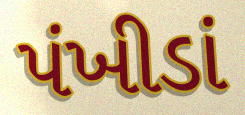
પંખીડાં